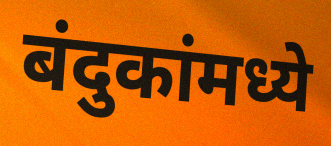
बंदुकांमध्ये